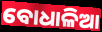
ବୋଧାଳିଆ